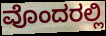
ವೊಂದರಲ್ಲಿ